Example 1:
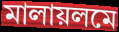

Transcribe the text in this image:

মালায়লমে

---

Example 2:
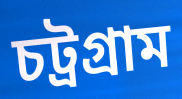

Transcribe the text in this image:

চট্রগ্রাম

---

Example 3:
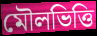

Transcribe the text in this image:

মৌলভিত্তি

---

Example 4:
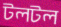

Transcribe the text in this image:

টলটল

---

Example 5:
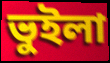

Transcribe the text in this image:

ভুইলা